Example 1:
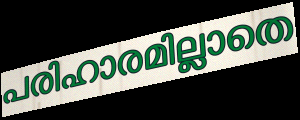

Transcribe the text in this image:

പരിഹാരമില്ലാതെ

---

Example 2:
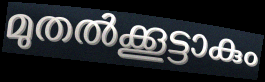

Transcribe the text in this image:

മുതൽക്കൂട്ടാകും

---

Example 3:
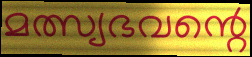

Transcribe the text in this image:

മത്സ്യഭവന്റെ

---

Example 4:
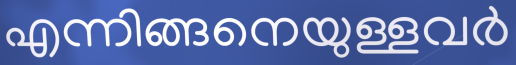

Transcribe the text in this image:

എന്നിങ്ങനെയുള്ളവർ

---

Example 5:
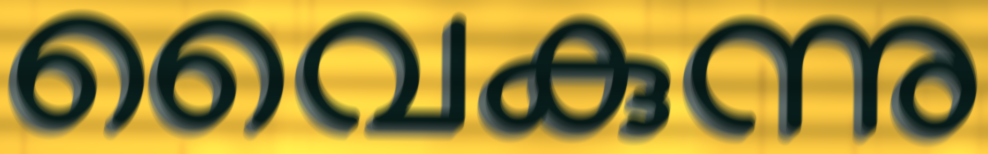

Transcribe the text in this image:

വൈകുന്നു